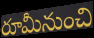
రూమీనుంచి